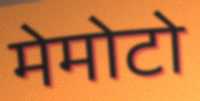
मेमोटो